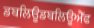
ਡਬਲਿਊਡਬਲਿਊਐੱਫ